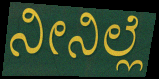
ನೀನಿಲ್ಲೆ